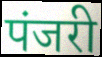
पंजरी